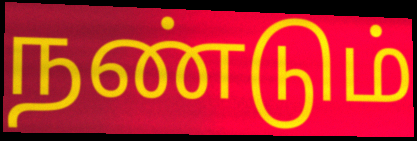
நண்டும்